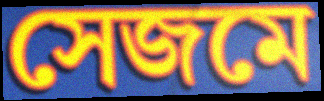
সেজমে